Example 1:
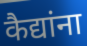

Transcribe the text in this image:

कैद्यांना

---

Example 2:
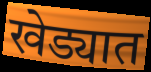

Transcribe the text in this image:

खेड्यात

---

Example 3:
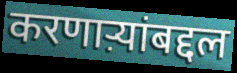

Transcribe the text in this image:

करणाऱ्‍यांबद्दल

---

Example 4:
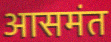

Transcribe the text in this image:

आसमंत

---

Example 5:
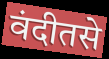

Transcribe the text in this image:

वंदीतसे